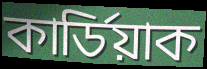
কাৰ্ডিয়াক